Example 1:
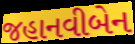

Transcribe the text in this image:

જહાનવીબેન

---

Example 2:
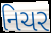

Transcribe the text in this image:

નિચર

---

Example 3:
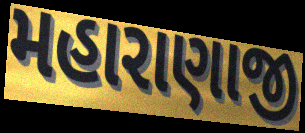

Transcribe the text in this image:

મહારાણાજી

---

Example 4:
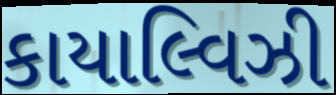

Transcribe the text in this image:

કાયાલ્વિઝી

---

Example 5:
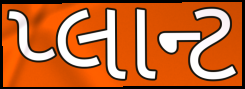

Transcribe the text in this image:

પ્લાન્ટ